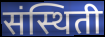
संस्थिती